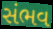
સંભવ